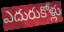
ఎదురుకోళ్లు